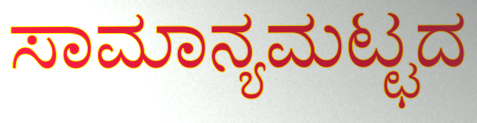
ಸಾಮಾನ್ಯಮಟ್ಟದ